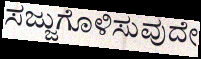
ಸಜ್ಜುಗೊಳಿಸುವುದೇ